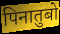
पिनातुबो